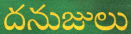
దనుజులు